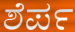
ಶೆರ್ಪ